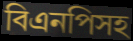
বিএনপিসহ